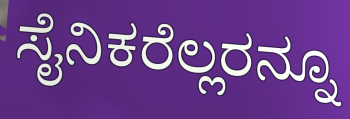
ಸೈನಿಕರೆಲ್ಲರನ್ನೂ